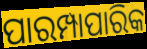
ପାରମ୍ପାପାରିକ